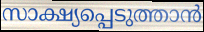
സാക്ഷ്യപ്പെടുത്താൻ